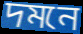
দমনে